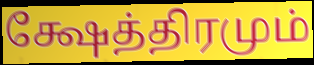
க்ஷேத்திரமும்